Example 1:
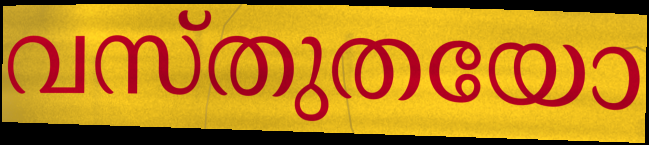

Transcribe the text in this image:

വസ്തുതയോ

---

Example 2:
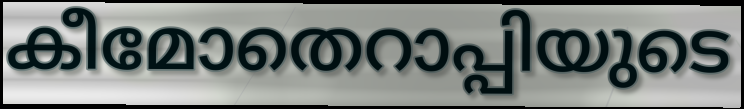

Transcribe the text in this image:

കീമോതെറാപ്പിയുടെ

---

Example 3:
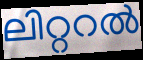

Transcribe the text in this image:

ലിറ്ററൽ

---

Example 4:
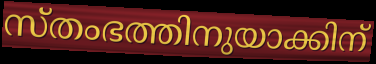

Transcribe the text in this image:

സ്തംഭത്തിനുയാക്കിന്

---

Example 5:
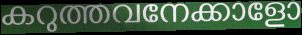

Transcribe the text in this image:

കറുത്തവനേക്കാളോ